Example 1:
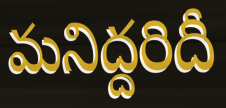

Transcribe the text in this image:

మనిద్దరిదీ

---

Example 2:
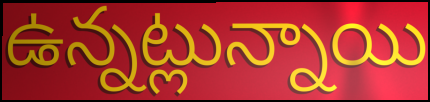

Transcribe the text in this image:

ఉన్నట్లున్నాయి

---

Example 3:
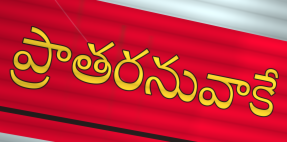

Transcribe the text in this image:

ప్రాతరనువాకే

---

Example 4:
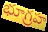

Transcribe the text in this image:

భూగ్రహ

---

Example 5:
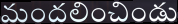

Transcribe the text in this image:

మందలించిండు